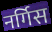
नर्गिस